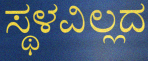
ಸ್ಥಳವಿಲ್ಲದ